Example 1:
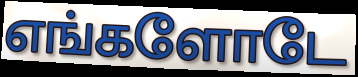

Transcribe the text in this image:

எங்களோடே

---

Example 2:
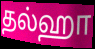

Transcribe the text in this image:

தல்ஹா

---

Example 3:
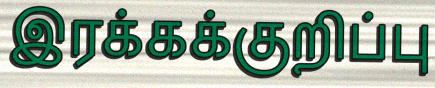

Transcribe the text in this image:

இரக்கக்குறிப்பு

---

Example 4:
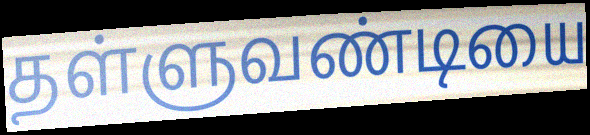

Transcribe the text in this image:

தள்ளுவண்டியை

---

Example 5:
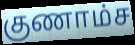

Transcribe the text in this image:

குணாம்ச